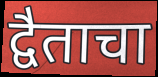
द्वैताचा